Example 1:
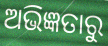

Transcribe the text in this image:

ଅଭିଜ୍ଞତାରୁ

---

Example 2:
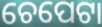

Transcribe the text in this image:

ଚେପେଟା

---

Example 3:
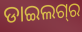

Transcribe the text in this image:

ଡାଇଲଗ୍‌ର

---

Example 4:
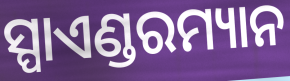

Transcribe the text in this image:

ସ୍ପାଏଣ୍ଡରମ୍ୟାନ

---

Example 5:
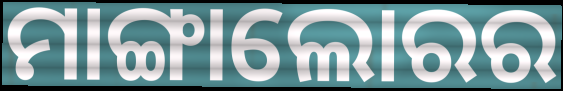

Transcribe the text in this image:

ମାଙ୍ଗାଲୋରର